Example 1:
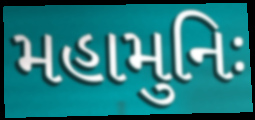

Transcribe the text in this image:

મહામુનિઃ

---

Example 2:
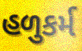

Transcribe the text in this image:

હળુકર્મ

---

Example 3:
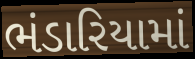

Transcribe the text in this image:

ભંડારિયામાં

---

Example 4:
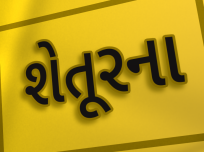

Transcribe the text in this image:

શેતૂરના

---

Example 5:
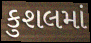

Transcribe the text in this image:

કુશલમાં